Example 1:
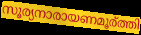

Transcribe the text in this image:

സൂര്യനാരായണമൂര്ത്തി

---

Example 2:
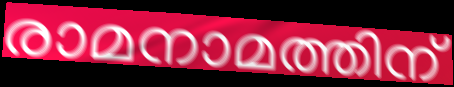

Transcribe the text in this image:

രാമനാമത്തിന്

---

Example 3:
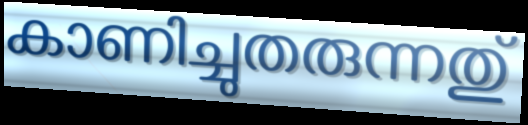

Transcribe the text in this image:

കാണിച്ചുതരുന്നതു്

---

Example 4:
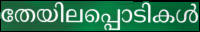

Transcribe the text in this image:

തേയിലപ്പൊടികൾ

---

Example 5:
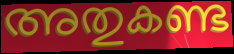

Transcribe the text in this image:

അതുകണ്ട